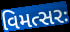
વિમત્સરઃ